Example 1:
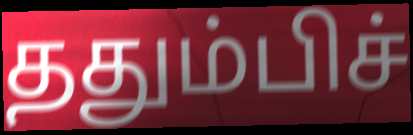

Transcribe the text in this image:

ததும்பிச்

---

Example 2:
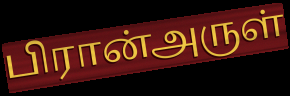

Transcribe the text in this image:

பிரான்அருள்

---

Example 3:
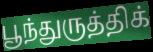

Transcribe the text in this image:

பூந்துருத்திக்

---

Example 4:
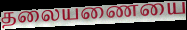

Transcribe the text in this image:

தலையணையை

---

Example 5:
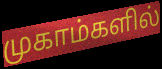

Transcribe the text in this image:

முகாம்களில்